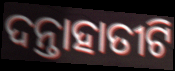
ଦନ୍ତାହାତୀଟି